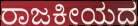
ರಾಜಕೀಯದ